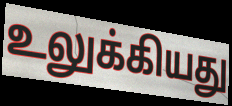
உலுக்கியது